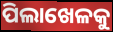
ପିଲାଖେଳକୁ